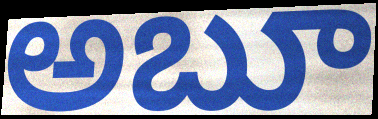
అబూ